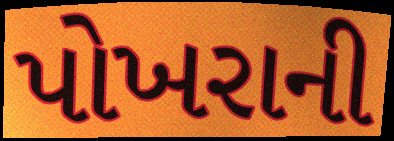
પોખરાની